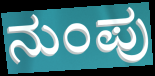
ನುಂಪು